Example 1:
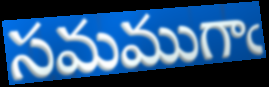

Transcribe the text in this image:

సమముగాఁ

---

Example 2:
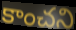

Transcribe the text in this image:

కాంచని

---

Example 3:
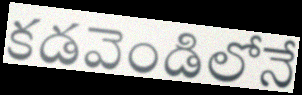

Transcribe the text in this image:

కడవెండిలోనే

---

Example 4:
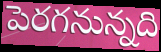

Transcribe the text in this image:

పెరగనున్నది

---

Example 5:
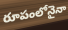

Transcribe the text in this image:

రూపంలోనైనా